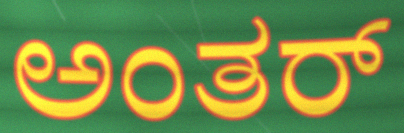
ಅಂತರ್